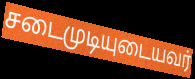
சடைமுடியுடையவர்